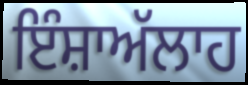
ਇੰਸ਼ਾਅੱਲਾਹ